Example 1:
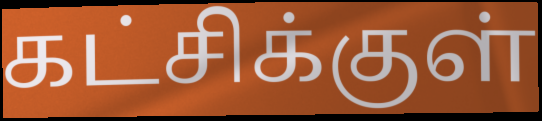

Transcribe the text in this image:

கட்சிக்குள்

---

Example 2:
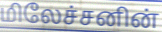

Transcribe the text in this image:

மிலேச்சனின்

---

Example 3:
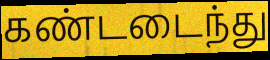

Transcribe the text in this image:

கண்டடைந்து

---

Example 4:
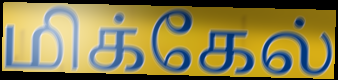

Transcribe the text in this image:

மிக்கேல்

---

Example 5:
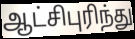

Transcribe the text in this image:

ஆட்சிபுரிந்து